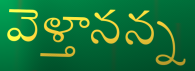
వెళ్తానన్న